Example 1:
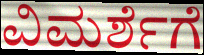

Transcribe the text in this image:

ವಿಮರ್ಶೆಗೆ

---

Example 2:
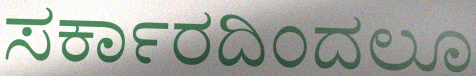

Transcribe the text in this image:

ಸರ್ಕಾರದಿಂದಲೂ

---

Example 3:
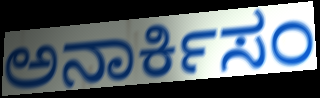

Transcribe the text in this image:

ಅನಾರ್ಕಿಸಂ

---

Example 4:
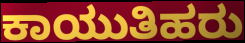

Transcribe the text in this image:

ಕಾಯುತಿಹರು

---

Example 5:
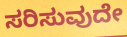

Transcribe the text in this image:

ಸರಿಸುವುದೇ